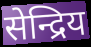
सेन्द्रिय